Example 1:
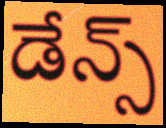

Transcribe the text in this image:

డేన్స్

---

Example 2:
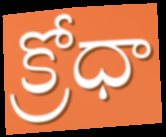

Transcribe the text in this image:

క్రోధా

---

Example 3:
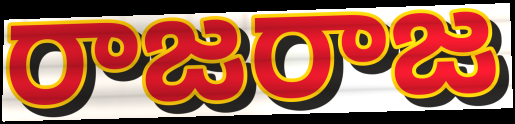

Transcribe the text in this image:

రాజరాజ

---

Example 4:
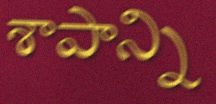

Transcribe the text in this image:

శాపాన్ని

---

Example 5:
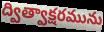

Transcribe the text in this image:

ద్విత్వాక్షరమును